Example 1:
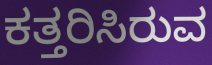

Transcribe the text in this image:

ಕತ್ತರಿಸಿರುವ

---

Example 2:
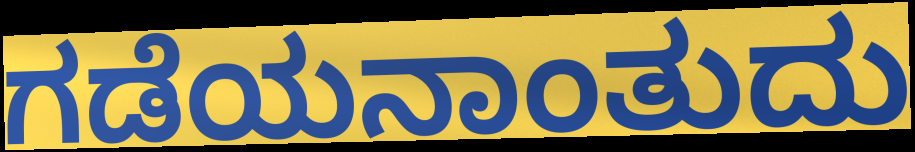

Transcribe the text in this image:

ಗಡೆಯನಾಂತುದು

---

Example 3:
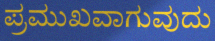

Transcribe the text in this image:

ಪ್ರಮುಖವಾಗುವುದು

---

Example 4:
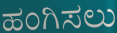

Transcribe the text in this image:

ಹಂಗಿಸಲು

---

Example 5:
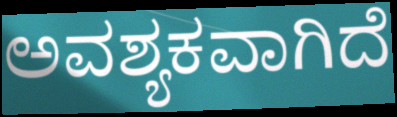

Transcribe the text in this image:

ಅವಶ್ಯಕವಾಗಿದೆ